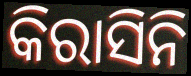
କିରାସିନି